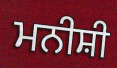
ਮਨੀਸ਼ੀ